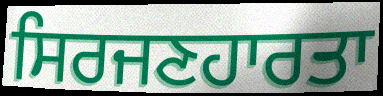
ਸਿਰਜਣਹਾਰਤਾ